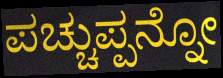
ಪಚ್ಚುಪ್ಪನ್ನೋ